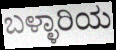
ಬಳ್ಳಾರಿಯ